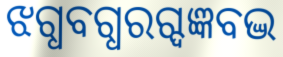
ଝଗ୍ଧବଗ୍ଧରଗ୍ଦଜ୍ଞବଦ୍ଭ